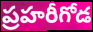
ప్రహరీగోడ